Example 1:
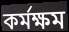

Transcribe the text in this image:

কৰ্মক্ষম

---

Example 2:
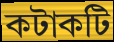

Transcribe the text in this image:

কটাকটি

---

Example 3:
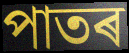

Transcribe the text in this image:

পাতৰ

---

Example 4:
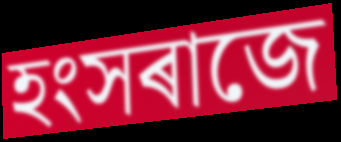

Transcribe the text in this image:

হংসৰাজে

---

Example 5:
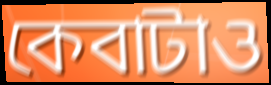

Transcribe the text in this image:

কেবাটাও